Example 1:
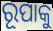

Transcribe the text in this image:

ରୂପାକୁ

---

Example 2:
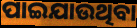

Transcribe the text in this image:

ପାଇଯାଉଥିବା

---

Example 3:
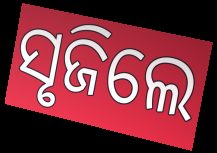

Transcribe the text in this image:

ସୃଜିଲେ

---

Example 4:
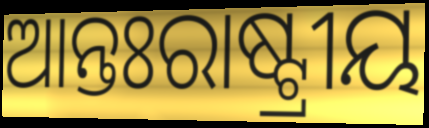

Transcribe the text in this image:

ଆନ୍ତଃରାଷ୍ଟ୍ରୀୟ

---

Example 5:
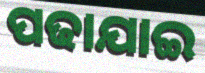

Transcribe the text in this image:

ପଢାଯାଇ